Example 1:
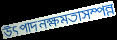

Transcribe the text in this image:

উৎপাদনক্ষমতাসম্পন্ন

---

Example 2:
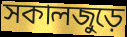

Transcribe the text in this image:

সকালজুড়ে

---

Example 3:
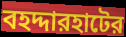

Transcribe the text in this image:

বহদ্দারহাটের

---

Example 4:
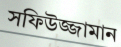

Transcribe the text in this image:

সফিউজ্জামান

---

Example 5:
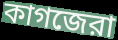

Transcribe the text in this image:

কাগজেরা